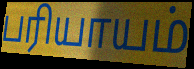
பரியாயம்